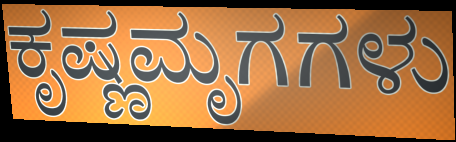
ಕೃಷ್ಣಮೃಗಗಳು